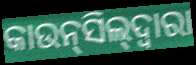
କାଉନ୍‌ସିଲ୍‌ଦ୍ବାରା